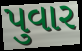
પુવાર